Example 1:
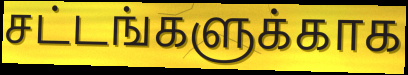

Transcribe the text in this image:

சட்டங்களுக்காக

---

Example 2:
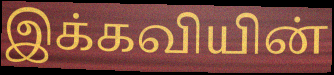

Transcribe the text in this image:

இக்கவியின்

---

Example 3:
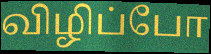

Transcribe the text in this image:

விழிப்போ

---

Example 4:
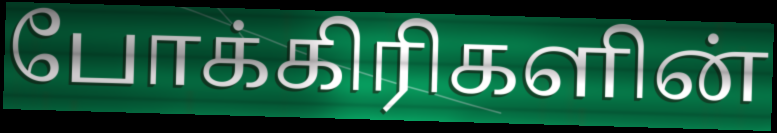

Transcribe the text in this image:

போக்கிரிகளின்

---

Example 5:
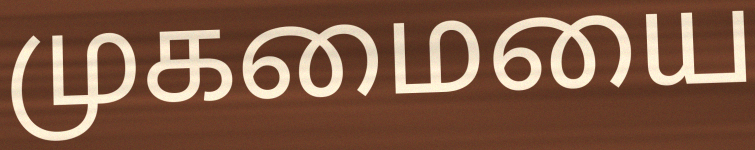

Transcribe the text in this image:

முகமையை